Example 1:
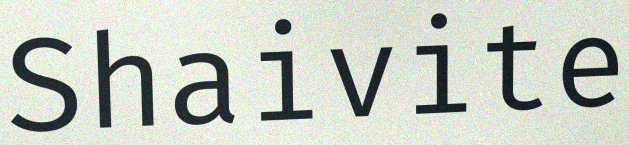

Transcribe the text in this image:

Shaivite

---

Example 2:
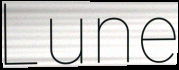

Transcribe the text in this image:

Lune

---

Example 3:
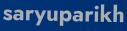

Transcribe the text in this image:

saryuparikh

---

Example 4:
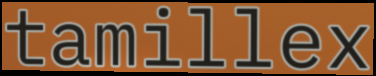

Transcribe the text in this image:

tamillex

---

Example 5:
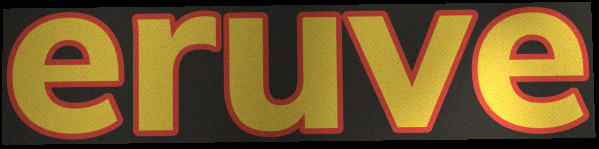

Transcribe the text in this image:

eruve